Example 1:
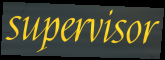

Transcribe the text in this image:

supervisor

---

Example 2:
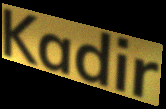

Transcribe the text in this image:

Kadir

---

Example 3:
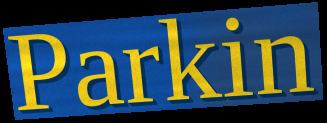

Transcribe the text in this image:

Parkin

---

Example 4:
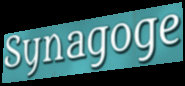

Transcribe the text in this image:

Synagoge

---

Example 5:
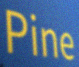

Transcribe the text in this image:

Pine